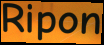
Ripon